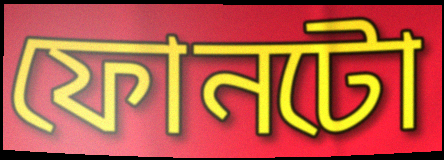
ফোনটো